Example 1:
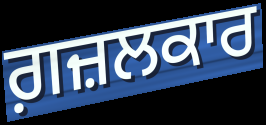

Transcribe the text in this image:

ਗ਼ਜ਼ਲਕਾਰ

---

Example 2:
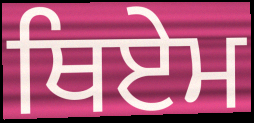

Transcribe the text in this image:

ਥਿਏਮ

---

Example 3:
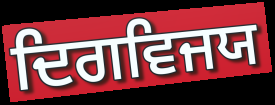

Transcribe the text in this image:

ਦਿਗਵਿਜਯ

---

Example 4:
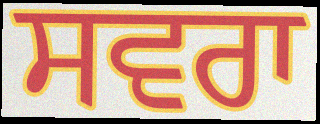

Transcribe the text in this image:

ਸਵਰਾ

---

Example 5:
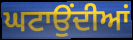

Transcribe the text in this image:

ਘਟਾਉਂਦੀਆਂ